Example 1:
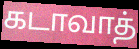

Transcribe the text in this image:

கடாவாத்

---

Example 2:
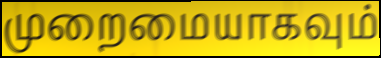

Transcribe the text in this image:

முறைமையாகவும்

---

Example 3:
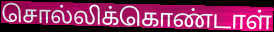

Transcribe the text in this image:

சொல்லிக்கொண்டாள்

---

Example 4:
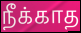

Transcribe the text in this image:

நீக்காத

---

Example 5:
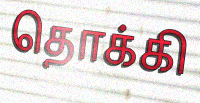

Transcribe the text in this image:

தொக்கி